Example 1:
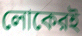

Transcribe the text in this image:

লোকেরই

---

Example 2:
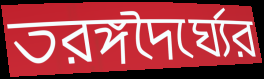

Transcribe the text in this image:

তরঙ্গদৈর্ঘ্যের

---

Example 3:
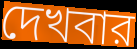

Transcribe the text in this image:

দেখবার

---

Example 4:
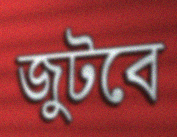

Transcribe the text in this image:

জুটবে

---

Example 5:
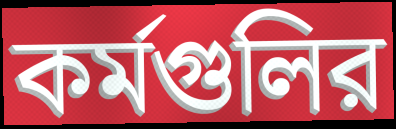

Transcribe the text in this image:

কর্মগুলির